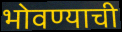
भोवण्याची